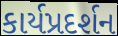
કાર્યપ્રદર્શન